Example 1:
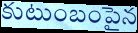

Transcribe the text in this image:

కుటుంబంపైన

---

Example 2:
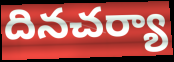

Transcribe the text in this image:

దినచర్యా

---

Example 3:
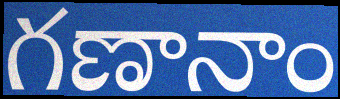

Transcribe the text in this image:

గణానాం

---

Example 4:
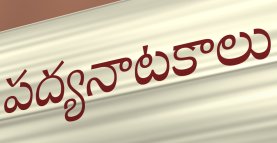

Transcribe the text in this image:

పద్యనాటకాలు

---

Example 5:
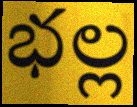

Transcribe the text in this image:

భల్ల